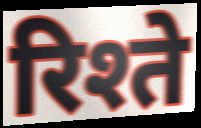
रिश्ते